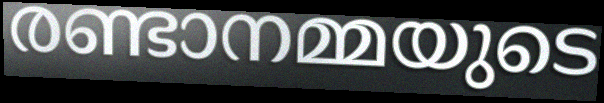
രണ്ടാനമ്മയുടെ